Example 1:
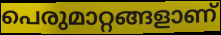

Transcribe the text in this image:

പെരുമാറ്റങ്ങളാണ്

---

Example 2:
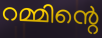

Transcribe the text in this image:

റമ്മിന്റെ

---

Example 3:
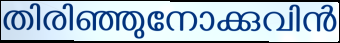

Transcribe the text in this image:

തിരിഞ്ഞുനോക്കുവിൻ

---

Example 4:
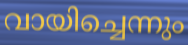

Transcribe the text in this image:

വായിച്ചെന്നും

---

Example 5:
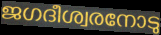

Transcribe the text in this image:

ജഗദീശ്വരനോടു